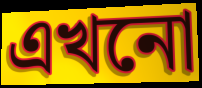
এখনো